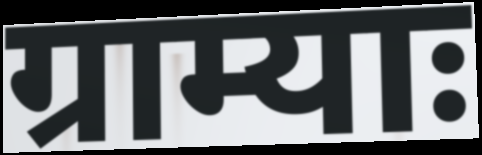
ग्राम्याः